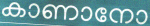
കാണാനോ